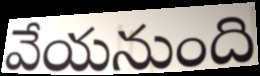
వేయనుంది